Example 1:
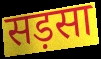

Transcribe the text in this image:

सड़सा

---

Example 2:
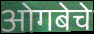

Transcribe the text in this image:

ओगबेचे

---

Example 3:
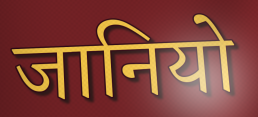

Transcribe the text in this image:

जानियो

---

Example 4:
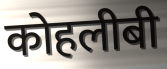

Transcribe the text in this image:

कोहलीबी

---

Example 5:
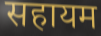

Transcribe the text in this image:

सहायम